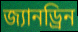
জ্যানড্রিন